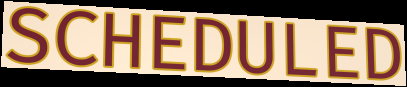
SCHEDULED